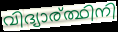
വിദ്യാര്ത്ഥിനി